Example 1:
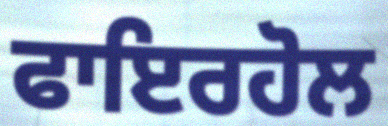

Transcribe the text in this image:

ਫਾਇਰਹੋਲ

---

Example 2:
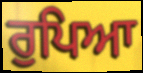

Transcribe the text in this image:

ਰੁਪਿਆ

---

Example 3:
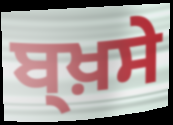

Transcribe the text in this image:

ਬ੍ਖ਼ਸੇ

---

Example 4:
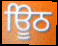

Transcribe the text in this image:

ਊਿਠ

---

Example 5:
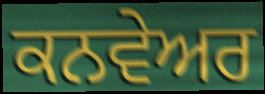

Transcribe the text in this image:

ਕਨਵੇਅਰ